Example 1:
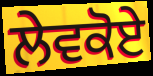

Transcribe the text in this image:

ਲੇਵਕੋਏ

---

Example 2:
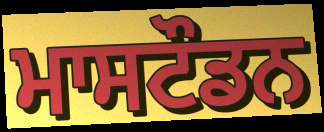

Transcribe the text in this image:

ਮਾਸਟੌਡਨ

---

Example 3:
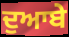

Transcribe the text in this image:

ਦੁਆਬੇ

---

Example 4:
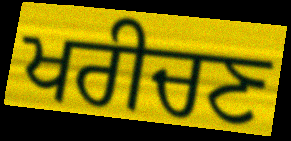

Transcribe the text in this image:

ਖਰੀਚਣ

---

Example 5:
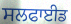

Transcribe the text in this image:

ਸਲਫਾਈਡ